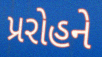
પ્રરોહને